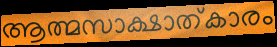
ആത്മസാക്ഷാത്കാരം